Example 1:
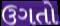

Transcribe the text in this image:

ઉગતો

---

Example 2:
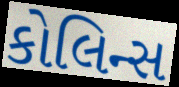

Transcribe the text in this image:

કોલિન્સ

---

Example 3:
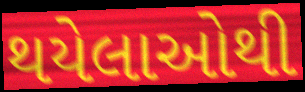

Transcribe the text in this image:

થયેલાઓથી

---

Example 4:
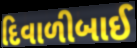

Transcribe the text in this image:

દિવાળીબાઈ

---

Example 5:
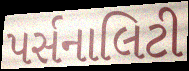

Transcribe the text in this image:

પર્સનાલિટી